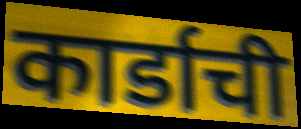
कार्डाची